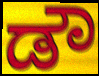
ಡೌ